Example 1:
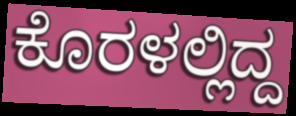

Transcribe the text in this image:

ಕೊರಳಲ್ಲಿದ್ದ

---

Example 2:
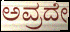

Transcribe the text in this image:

ಅವ್ರದೇ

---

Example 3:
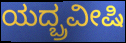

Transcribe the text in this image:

ಯದ್ಬ್ರವೀಷಿ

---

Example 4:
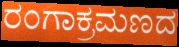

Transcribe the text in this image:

ರಂಗಾಕ್ರಮಣದ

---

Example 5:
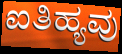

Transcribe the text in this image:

ಐತಿಹ್ಯವು